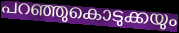
പറഞ്ഞുകൊടുക്കയും